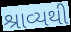
શ્રાવ્યથી